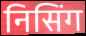
निसिंग